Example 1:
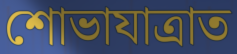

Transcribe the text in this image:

শোভাযাত্ৰাত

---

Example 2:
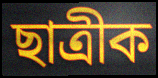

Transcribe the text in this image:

ছাত্ৰীক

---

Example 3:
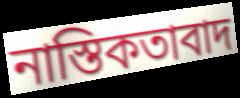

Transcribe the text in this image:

নাস্তিকতাবাদ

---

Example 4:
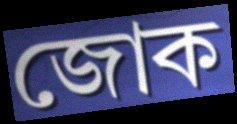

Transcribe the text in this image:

জোক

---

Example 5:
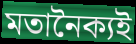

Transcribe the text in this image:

মতানৈক্যই